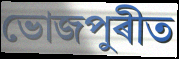
ভোজপুৰীত